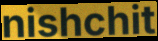
nishchit